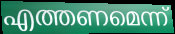
എത്തണമെന്ന്